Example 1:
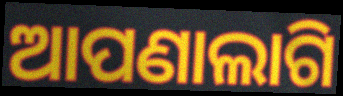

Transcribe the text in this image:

ଆପଣାଲାଗି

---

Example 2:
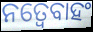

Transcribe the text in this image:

ନତ୍ୱେବାହଂ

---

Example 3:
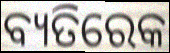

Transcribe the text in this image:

ବ୍ୟତିରେକ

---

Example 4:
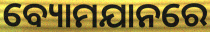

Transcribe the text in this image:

ବ୍ୟୋମଯାନରେ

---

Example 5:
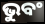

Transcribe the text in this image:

ଭୁବଂ